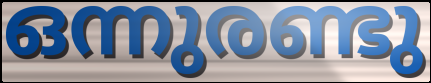
ഒന്നുരണ്ടു